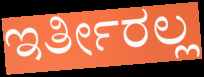
ಇರ್ತೀರಲ್ಲ